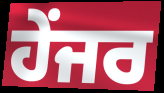
ਹੇਂਜਰ